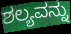
ಶಲ್ಯವನ್ನು